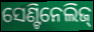
ସେଣ୍ଟିନେଲିଜ୍